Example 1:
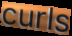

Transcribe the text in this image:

curls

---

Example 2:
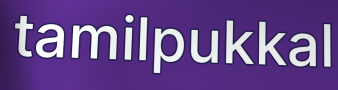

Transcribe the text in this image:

tamilpukkal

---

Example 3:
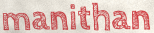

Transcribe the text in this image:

manithan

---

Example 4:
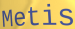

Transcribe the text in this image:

Metis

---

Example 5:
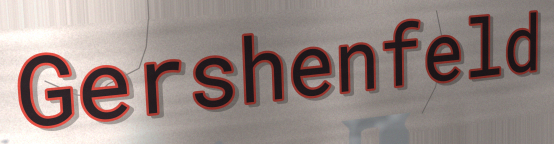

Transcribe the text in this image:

Gershenfeld